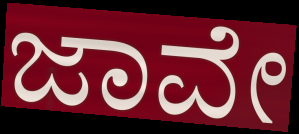
ಜಾವೇ